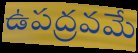
ఉపద్రవమే